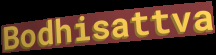
Bodhisattva